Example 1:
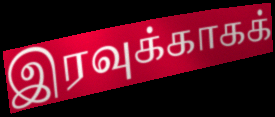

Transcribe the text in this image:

இரவுக்காகக்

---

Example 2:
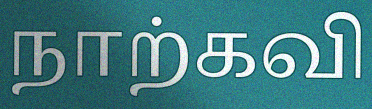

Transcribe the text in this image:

நாற்கவி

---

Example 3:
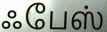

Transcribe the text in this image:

ஃபேஸ்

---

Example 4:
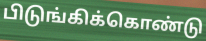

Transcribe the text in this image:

பிடுங்கிக்கொண்டு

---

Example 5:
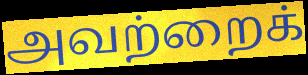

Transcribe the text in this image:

அவற்றைக்